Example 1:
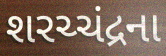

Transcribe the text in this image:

શરચ્ચંદ્રના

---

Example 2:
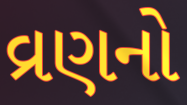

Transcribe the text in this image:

વ્રણનો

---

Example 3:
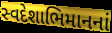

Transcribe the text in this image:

સ્વદેશાભિમાનનાં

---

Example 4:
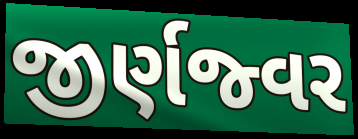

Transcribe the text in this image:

જીર્ણજ્વર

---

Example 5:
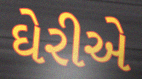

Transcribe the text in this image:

ઘેરીએ